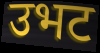
उभट